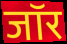
जॉर